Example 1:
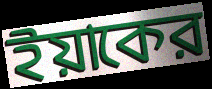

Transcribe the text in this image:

ইয়াকের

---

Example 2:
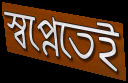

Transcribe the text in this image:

স্বপ্নেতেই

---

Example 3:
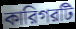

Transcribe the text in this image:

কারিগরটি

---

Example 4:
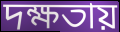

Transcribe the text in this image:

দক্ষতায়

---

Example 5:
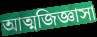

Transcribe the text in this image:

আত্মজিজ্ঞাসা